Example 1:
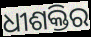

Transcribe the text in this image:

ଧୀଶକ୍ତିର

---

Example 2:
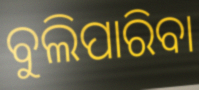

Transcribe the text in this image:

ବୁଲିପାରିବା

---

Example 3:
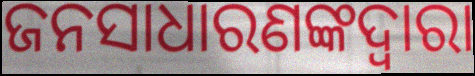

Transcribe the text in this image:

ଜନସାଧାରଣଙ୍କଦ୍ବାରା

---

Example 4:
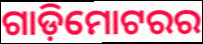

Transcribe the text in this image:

ଗାଡ଼ିମୋଟରର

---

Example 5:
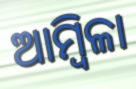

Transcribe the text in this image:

ଆମ୍ବିଳା